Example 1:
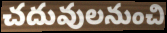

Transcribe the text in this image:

చదువులనుంచి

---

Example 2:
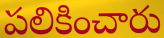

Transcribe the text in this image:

పలికించారు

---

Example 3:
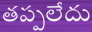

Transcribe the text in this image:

తప్పలేదు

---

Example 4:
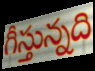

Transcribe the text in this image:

గీస్తున్నది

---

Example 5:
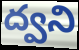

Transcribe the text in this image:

ద్వని